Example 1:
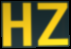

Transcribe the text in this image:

HZ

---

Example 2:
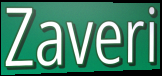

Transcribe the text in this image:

Zaveri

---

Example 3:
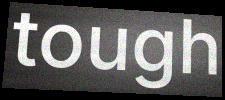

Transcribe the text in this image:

tough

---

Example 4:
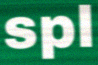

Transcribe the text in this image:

spl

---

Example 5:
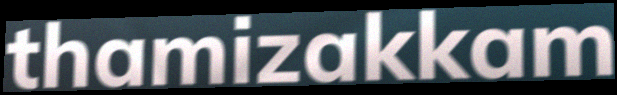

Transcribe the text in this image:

thamizakkam